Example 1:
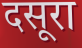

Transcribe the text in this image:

दसूरा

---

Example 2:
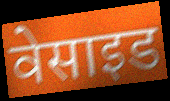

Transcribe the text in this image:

वेसाइड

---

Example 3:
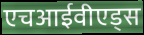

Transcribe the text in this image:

एचआईवीएड्स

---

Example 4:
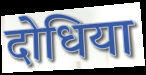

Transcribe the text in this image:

दोधिया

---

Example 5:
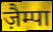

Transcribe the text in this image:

ज़ैम्पा